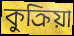
কুক্রিয়া